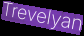
Trevelyan